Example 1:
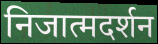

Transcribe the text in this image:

निजात्मदर्शन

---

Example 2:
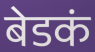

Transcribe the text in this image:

बेडकं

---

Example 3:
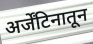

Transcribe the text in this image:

अर्जेंटिनातून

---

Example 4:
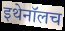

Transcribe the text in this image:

इथेनॉलच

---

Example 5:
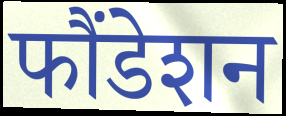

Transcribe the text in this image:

फौंडेशन